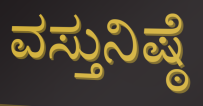
ವಸ್ತುನಿಷ್ಠೆ